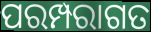
ପରମ୍ପରାଗତ